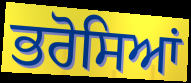
ਭਰੋਸਿਆਂ